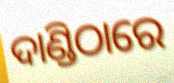
ଦାଣ୍ଡିଠାରେ